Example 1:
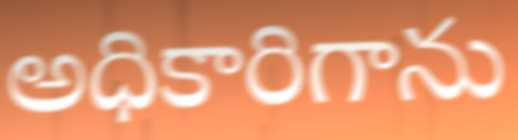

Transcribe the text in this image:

అధికారిగాను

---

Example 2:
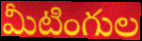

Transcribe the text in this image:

మీటింగుల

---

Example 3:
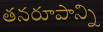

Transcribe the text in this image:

తనరూపాన్ని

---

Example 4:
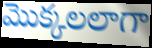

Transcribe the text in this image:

మొక్కలలాగా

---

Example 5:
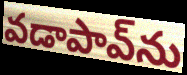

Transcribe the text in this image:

వడాపావ్‌ను